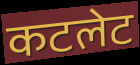
कटलेट